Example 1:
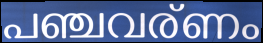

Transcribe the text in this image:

പഞ്ചവര്ണം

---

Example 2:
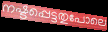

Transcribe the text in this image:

നഷ്ടപ്പെട്ടതുപോലെ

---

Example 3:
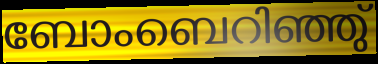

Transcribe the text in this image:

ബോംബെറിഞ്ഞു്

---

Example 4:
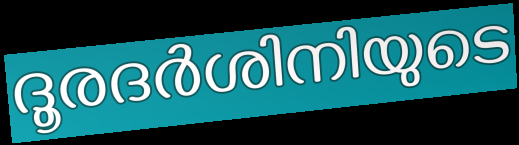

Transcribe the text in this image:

ദൂരദർശിനിയുടെ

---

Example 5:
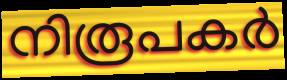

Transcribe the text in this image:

നിരൂപകർ